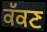
ਕੱਕਣ